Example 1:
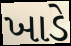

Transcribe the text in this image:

ખાડે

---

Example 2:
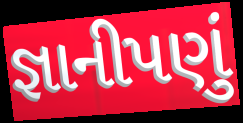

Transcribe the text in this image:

જ્ઞાનીપણું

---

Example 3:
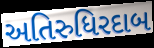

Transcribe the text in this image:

અતિરુધિરદાબ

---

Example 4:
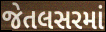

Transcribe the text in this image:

જેતલસરમાં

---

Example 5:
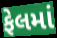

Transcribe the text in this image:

ફેલમાં